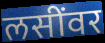
लसींवर